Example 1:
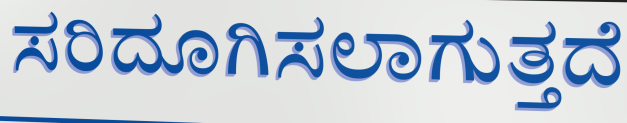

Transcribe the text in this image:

ಸರಿದೂಗಿಸಲಾಗುತ್ತದೆ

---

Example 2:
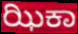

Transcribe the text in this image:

ಝಿಕಾ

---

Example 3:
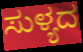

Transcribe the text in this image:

ಸುಳ್ಯದ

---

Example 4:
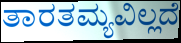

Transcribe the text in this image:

ತಾರತಮ್ಯವಿಲ್ಲದೆ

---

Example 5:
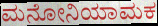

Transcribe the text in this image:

ಮನೋನಿಯಾಮಕ